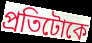
প্ৰতিটোকে